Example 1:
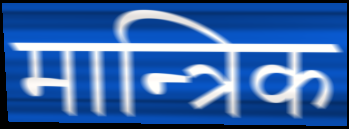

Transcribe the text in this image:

मान्त्रिक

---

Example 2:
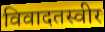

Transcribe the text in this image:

विवादतस्वीर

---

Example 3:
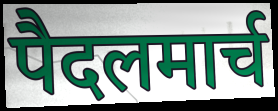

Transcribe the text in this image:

पैदलमार्च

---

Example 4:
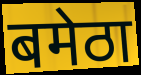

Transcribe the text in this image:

बमेठा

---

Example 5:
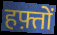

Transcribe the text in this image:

हफ़्तों